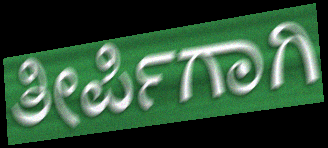
ತೀರ್ಪಿಗಾಗಿ